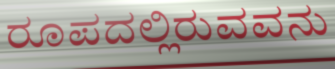
ರೂಪದಲ್ಲಿರುವವನು